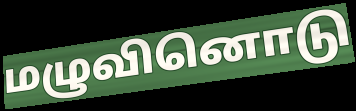
மழுவினொடு